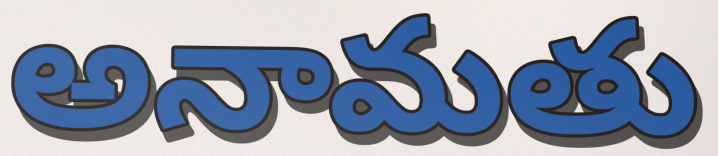
అనామతు